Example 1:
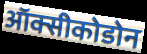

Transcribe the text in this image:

ऑक्सीकोडोन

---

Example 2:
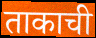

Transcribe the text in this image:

ताकाची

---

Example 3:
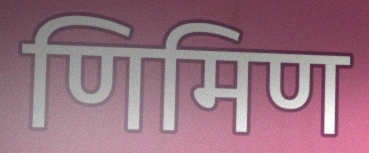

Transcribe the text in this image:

णिमिण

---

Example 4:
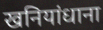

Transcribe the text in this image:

खनियांधाना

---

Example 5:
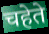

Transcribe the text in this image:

चहेते